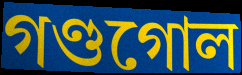
গণ্ডগোল